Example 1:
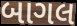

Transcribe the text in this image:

બાગલ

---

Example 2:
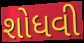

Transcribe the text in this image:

શોધવી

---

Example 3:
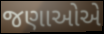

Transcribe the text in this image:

જણાઓએ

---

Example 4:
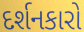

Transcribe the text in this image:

દર્શનકારો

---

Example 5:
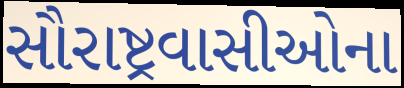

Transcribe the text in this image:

સૌરાષ્ટ્રવાસીઓના